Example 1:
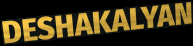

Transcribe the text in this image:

DESHAKALYAN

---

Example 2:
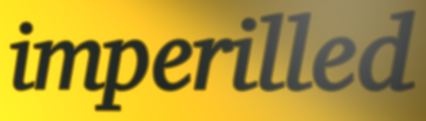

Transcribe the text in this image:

imperilled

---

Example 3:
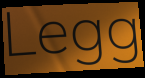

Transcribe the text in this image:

Legg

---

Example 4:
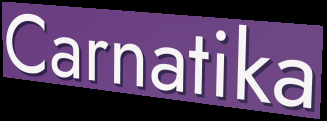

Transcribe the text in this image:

Carnatika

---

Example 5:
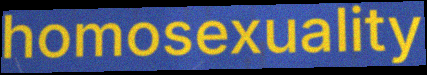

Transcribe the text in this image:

homosexuality